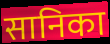
सानिका